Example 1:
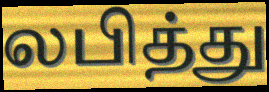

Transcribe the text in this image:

லபித்து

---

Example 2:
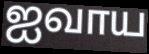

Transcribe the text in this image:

ஐவாய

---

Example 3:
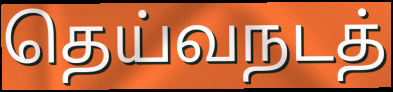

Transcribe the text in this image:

தெய்வநடத்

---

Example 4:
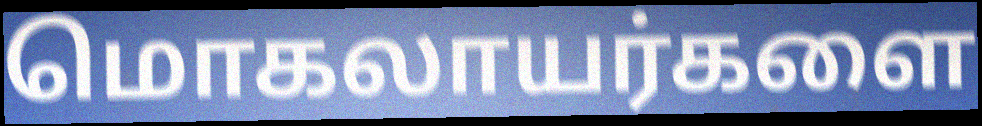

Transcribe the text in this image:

மொகலாயர்களை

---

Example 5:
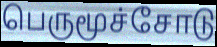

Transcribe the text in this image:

பெருமூச்சோடு